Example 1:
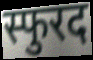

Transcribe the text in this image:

स्फुरद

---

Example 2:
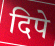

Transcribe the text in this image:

दिपे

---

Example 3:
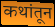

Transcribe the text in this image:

कथांतून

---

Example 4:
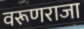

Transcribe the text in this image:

वरूणराजा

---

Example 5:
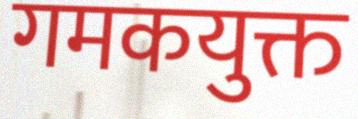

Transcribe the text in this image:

गमकयुक्त